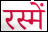
रस्‍में